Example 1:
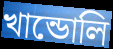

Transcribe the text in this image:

খান্ডোলি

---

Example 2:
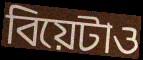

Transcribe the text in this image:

বিয়েটাও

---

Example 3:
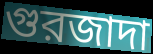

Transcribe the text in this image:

গুরজাদা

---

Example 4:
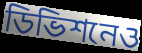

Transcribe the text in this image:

ডিভিশনেও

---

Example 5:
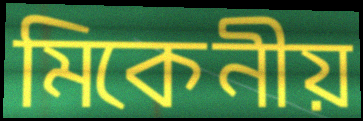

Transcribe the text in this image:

মিকেনীয়